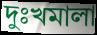
দুঃখমালা